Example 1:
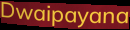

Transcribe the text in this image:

Dwaipayana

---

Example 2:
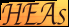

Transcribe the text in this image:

HEAs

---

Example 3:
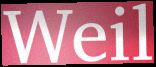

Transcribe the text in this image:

Weil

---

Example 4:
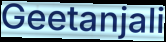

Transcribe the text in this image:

Geetanjali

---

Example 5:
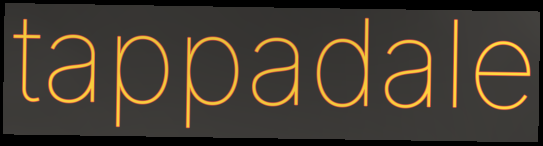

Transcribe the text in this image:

tappadale